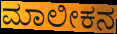
ಮಾಲೀಕನ